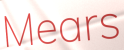
Mears